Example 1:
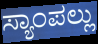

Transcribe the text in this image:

ಸ್ಯಾಂಪಲ್ಲು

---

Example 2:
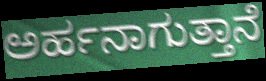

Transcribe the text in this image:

ಅರ್ಹನಾಗುತ್ತಾನೆ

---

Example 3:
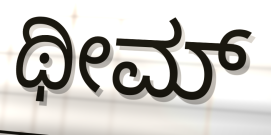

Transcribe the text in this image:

ಥೀಮ್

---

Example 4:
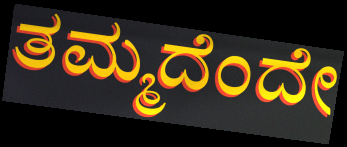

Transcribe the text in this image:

ತಮ್ಮದೆಂದೇ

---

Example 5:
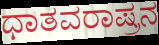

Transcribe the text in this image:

ಧಾತವರಾಷ್ರನ